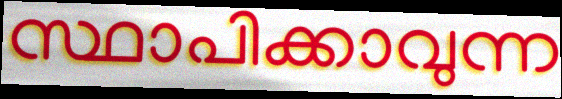
സ്ഥാപിക്കാവുന്ന